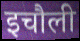
इचौली